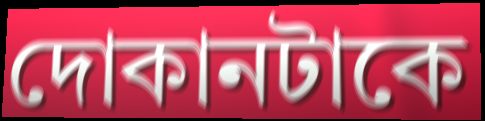
দোকানটাকে